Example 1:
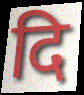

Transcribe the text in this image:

दि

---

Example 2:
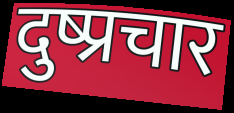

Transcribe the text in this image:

दुष्‍प्रचार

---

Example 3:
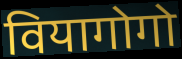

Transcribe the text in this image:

वियागोगो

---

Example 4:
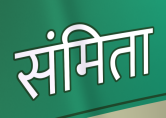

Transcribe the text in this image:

संमिता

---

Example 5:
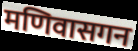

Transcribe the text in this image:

मणिवासगन